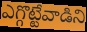
ఎగ్గొట్టేవాడిని